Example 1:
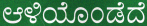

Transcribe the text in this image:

ಆಳಿಯೊಂಡೆದೆ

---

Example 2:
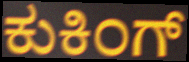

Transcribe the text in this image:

ಕುಕಿಂಗ್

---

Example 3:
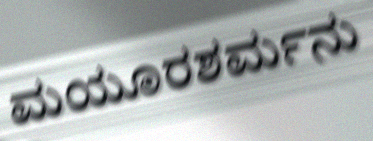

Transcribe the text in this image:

ಮಯೂರಶರ್ಮನು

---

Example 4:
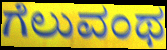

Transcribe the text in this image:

ಗೆಲುವಂಥ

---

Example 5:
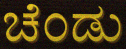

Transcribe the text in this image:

ಚೆಂಡು